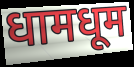
धामधूम